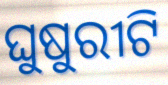
ଘୁଷୁରୀଟି